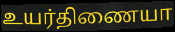
உயர்திணையா